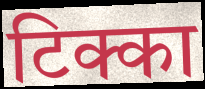
टिक्का